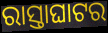
ରାସ୍ତାଘାଟର